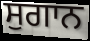
ਸੁਗਾਨ